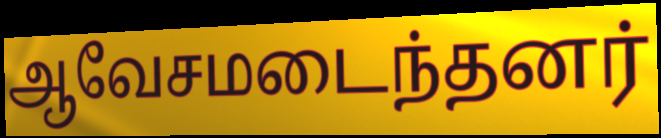
ஆவேசமடைந்தனர்